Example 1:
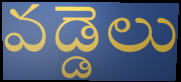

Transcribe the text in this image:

వడ్డెలు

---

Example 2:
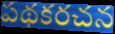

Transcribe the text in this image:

పథకరచన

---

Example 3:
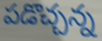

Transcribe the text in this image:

పడొచ్చన్న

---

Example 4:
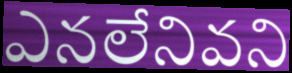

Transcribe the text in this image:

ఎనలేనివని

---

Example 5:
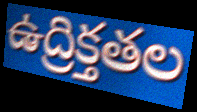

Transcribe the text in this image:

ఉద్రిక్తతల